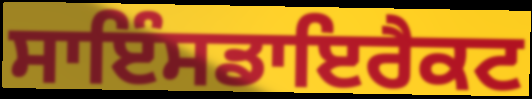
ਸਾਇੰਸਡਾਇਰੈਕਟ